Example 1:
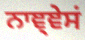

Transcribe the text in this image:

ਨਾਞ੍ਞੇਸਂ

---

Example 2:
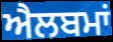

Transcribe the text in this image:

ਐਲਬਮਾਂ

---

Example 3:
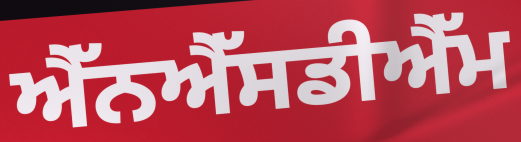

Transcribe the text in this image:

ਐੱਨਐੱਸਡੀਐੱਮ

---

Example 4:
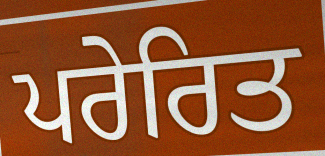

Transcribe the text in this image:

ਪਰੇਰਿਤ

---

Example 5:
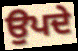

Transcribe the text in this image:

ਉਪਦੇ